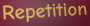
Repetition